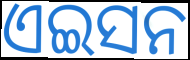
ଏଇସନ